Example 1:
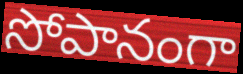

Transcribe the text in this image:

సోపానంగా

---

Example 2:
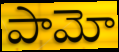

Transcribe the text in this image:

పామో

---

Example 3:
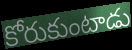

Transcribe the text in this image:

కోరుకుంటాడు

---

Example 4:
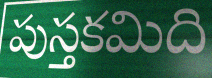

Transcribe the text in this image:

పుస్తకమిది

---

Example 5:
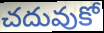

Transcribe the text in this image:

చదువుకో